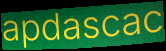
apdascac